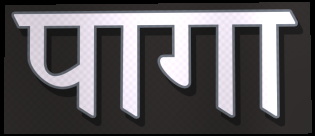
पागा